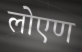
लोएण